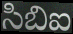
సిబిఐ